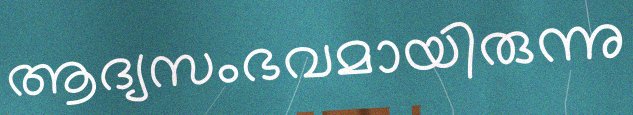
ആദ്യസംഭവമായിരുന്നു